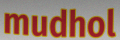
mudhol